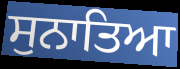
ਸੁਨਾਤਿਆ